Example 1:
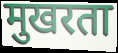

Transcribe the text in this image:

मुखरता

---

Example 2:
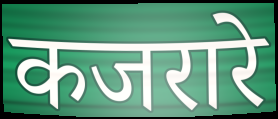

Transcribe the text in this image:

कजरारे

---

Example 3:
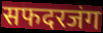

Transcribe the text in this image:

सफदरजंग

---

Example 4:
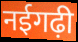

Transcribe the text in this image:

नईगढ़ी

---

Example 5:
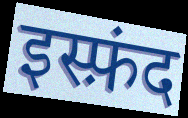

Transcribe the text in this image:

इस्फ़ंद